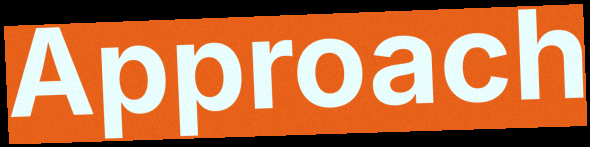
Approach